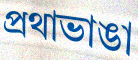
প্রথাভাঙা